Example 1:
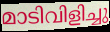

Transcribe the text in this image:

മാടിവിളിച്ചു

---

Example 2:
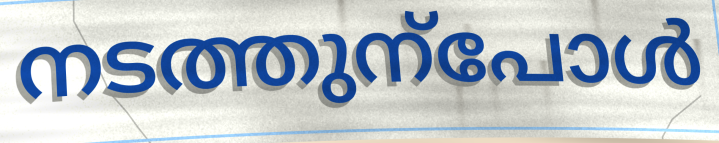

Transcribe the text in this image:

നടത്തുന്പോൾ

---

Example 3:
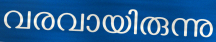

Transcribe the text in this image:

വരവായിരുന്നു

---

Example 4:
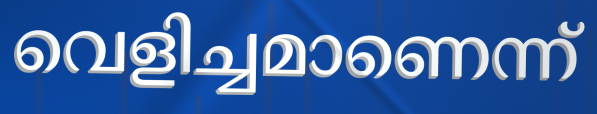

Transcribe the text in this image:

വെളിച്ചമാണെന്ന്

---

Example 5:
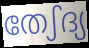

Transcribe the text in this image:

തേഽദ്യ